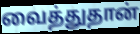
வைத்துதான்